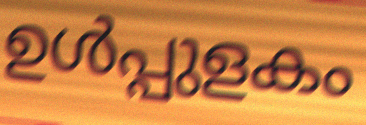
ഉൾപ്പുളകം